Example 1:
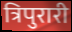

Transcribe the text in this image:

त्रिपुरारी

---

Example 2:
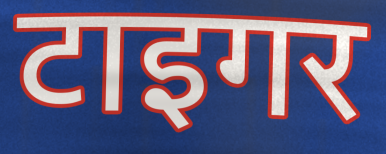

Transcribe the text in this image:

टाइगर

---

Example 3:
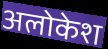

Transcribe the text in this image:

अलोकेश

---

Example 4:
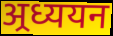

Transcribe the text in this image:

अ्रध्ययन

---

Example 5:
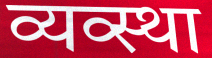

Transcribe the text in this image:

व्यव्स्था